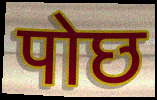
पोछ